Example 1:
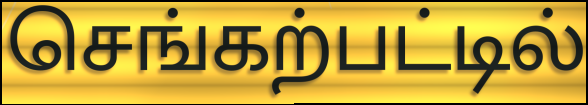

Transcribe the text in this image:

செங்கற்பட்டில்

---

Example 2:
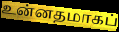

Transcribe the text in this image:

உன்னதமாகப்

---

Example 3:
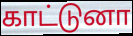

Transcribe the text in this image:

காட்டுனா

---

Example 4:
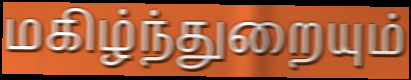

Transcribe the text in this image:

மகிழ்ந்துறையும்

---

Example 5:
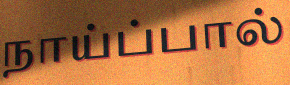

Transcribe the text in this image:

நாய்ப்பால்